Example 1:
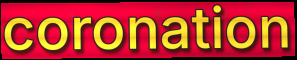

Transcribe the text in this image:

coronation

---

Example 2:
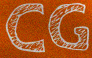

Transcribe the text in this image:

CG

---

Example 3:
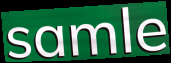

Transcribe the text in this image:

samle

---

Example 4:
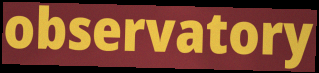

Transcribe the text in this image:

observatory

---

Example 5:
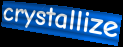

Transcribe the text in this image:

crystallize